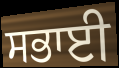
ਸਭਾਈ